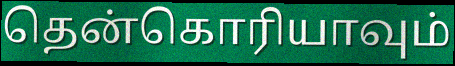
தென்கொரியாவும்